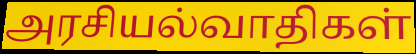
அரசியல்வாதிகள்